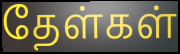
தேள்கள்